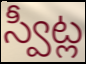
స్వీట్ల